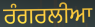
ਰੰਗਰਲੀਆ